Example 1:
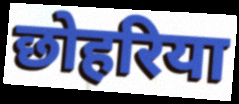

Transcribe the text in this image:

छोहरिया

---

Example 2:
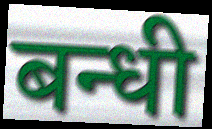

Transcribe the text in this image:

बन्धी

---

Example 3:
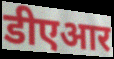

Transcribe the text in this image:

डीएआर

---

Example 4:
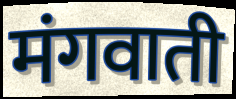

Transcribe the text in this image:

मंगवाती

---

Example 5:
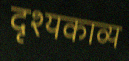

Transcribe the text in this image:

दृश्यकाव्य